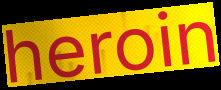
heroin